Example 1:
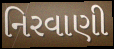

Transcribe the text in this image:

નિરવાણી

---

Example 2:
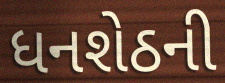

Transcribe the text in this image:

ધનશેઠની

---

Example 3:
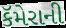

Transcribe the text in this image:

કૅમેરાની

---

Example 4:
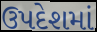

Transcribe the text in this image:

ઉપદેશમાં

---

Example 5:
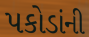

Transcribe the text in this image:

પકોડાંની